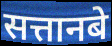
सत्तानबे